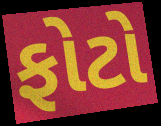
ફોટો